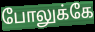
போலுக்கே